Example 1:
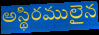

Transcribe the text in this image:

అస్థిరములైన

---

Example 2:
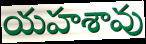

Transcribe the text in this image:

యహశావు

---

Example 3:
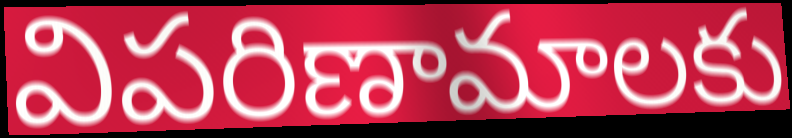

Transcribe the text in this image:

విపరిణామాలకు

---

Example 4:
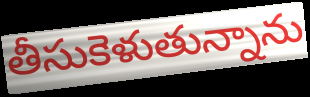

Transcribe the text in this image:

తీసుకెళుతున్నాను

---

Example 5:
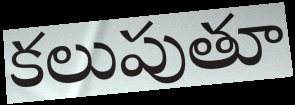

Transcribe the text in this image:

కలుపుతూ